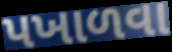
પખાળવા